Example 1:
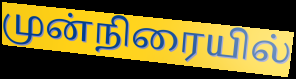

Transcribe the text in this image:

முன்நிரையில்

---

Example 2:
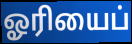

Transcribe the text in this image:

ஓரியைப்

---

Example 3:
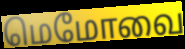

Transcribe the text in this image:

மெமோவை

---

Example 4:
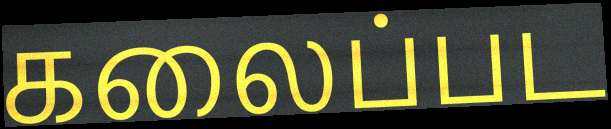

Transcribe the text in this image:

கலைப்பட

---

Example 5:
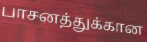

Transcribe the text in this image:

பாசனத்துக்கான